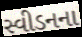
સ્વીડનના